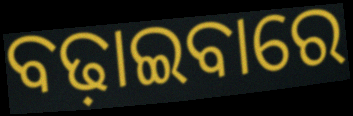
ବଢ଼ାଇବାରେ